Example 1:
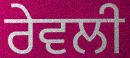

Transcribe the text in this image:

ਰੇਵਲੀ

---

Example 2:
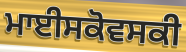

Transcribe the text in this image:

ਮਾਈਸਕੋਵਸਕੀ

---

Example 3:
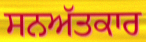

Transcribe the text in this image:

ਸਨਅੱਤਕਾਰ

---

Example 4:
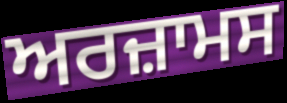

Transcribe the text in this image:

ਅਰਜ਼ਾਮਸ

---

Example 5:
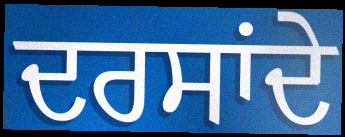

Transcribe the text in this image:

ਦਰਸਾਂਦੇ